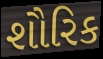
શૌરિક